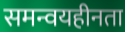
समन्वयहीनता